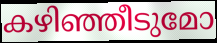
കഴിഞ്ഞീടുമോ